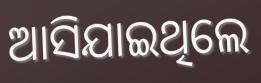
ଆସିଯାଇଥିଲେ